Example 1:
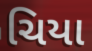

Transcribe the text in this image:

ચિયા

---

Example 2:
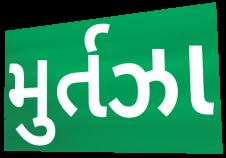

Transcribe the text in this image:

મુર્તઝા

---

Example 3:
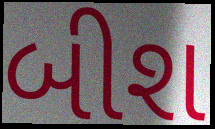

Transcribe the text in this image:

બીશ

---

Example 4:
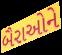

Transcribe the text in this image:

બૈરાઓને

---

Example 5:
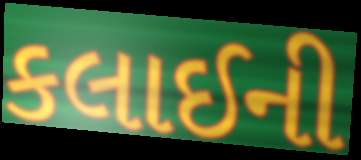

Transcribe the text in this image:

કલાઈની